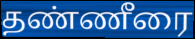
தண்ணீரை